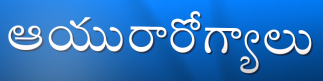
ఆయురారోగ్యాలు